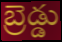
బ్రెడ్డు